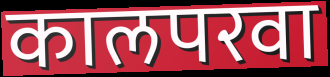
कालपरवा